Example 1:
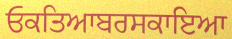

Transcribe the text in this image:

ਓਕਤਿਆਬਰਸਕਾਇਆ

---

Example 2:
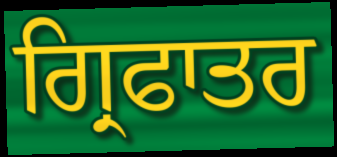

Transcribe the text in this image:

ਗ੍ਰਿਫਾਤਰ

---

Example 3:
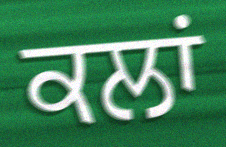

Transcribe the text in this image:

ਕਲਾਂ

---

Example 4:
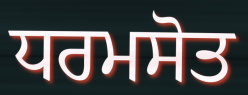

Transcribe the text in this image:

ਧਰਮਸੋਤ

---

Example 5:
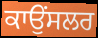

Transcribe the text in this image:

ਕਾਉਂਸਲਰ